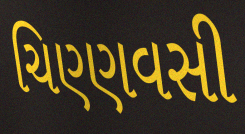
ચિણ્ણવસી